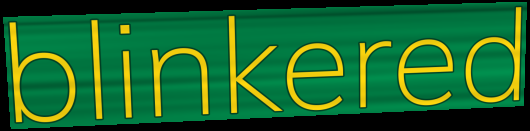
blinkered